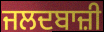
ਜਲਦਬਾਜ਼ੀ